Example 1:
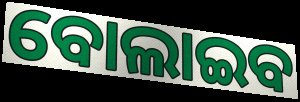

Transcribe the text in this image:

ବୋଲାଇବ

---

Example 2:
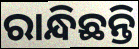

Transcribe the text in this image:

ରାନ୍ଧିଛନ୍ତି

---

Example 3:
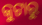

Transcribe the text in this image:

କୁଟାରୁ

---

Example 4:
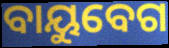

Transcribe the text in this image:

ବାୟୁବେଗ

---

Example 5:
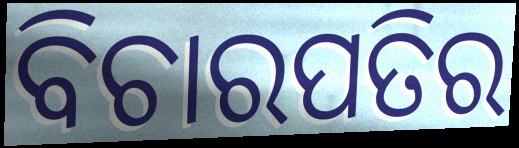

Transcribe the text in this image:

ବିଚାରପତିର